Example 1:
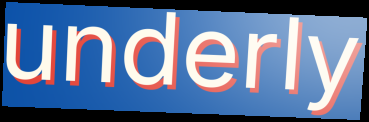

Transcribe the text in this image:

underly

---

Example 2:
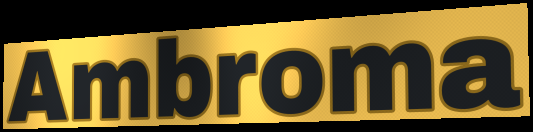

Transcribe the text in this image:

Ambroma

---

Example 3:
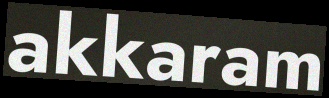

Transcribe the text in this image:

akkaram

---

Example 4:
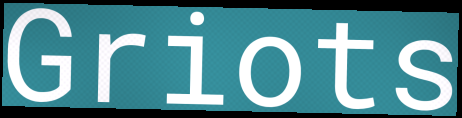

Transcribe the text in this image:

Griots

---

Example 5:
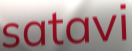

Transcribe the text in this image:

satavi